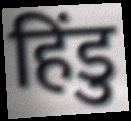
हिंडु